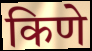
किणे